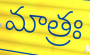
మాత్రః